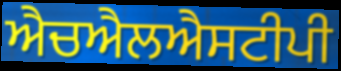
ਐਚਐਲਐਸਟੀਪੀ